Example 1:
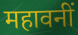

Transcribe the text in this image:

महावनीं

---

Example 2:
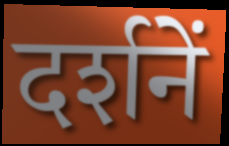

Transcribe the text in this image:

दर्शनें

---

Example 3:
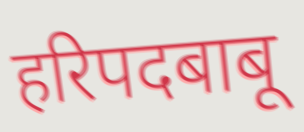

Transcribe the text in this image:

हरिपदबाबू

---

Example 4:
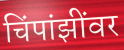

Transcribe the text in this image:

चिंपांझींवर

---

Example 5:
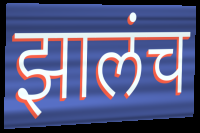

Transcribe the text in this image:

झालंच